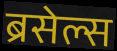
ब्रसेल्स